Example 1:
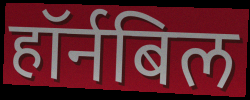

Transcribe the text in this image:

हॉर्नबिल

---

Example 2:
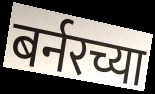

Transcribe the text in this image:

बर्नरच्या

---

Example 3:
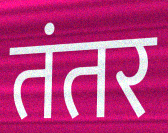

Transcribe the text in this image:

तंतर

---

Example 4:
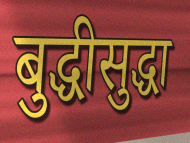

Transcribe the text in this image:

बुद्धीसुद्धा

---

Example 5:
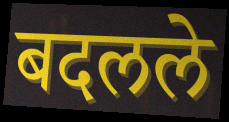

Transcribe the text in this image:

बदलले